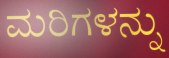
ಮರಿಗಳನ್ನು